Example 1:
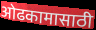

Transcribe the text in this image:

ओढकामासाठी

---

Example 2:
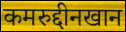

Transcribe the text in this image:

कमरुद्दीनखान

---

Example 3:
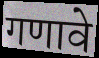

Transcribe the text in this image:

गणावे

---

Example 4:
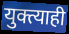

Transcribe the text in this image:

युक्त्याही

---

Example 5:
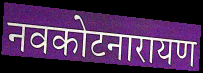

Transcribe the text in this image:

नवकोटनारायण